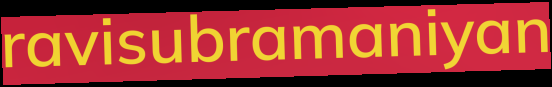
ravisubramaniyan